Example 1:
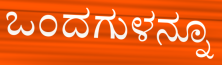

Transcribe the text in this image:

ಒಂದಗುಳನ್ನೂ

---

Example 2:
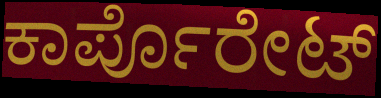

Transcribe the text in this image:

ಕಾರ್ಪೊರೇಟ್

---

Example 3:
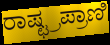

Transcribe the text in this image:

ರಾಷ್ಟ್ರಪ್ರಾಣಿ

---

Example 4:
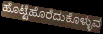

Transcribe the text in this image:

ಹೊಟ್ಟೆಹೊರೆದುಕೊಳ್ಳುವ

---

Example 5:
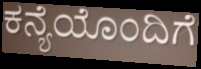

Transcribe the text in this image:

ಕನ್ಯೆಯೊಂದಿಗೆ